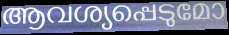
ആവശ്യപ്പെടുമോ